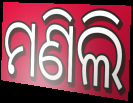
ମଣିଲି